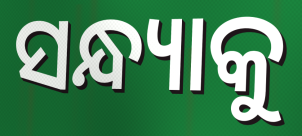
ସନ୍ଧ୍ୟାକୁ